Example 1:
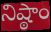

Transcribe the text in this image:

నిష్ఠాం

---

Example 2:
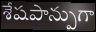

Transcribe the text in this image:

శేషపాన్పుగా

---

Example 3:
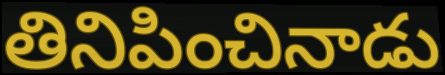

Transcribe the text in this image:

తినిపించినాడు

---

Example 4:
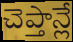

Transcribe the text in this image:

చెప్తాన్లే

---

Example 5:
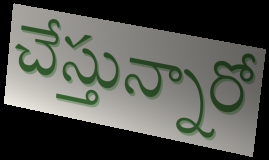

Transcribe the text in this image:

చేస్తున్నారో